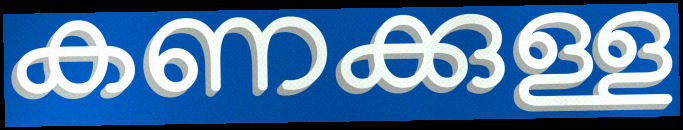
കണക്കുള്ള